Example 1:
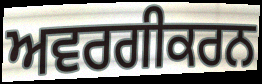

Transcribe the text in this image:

ਅਵਰਗੀਕਰਨ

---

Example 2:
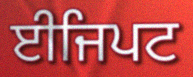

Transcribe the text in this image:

ਈਜਿਪਟ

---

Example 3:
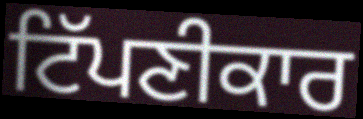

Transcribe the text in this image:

ਟਿੱਪਣੀਕਾਰ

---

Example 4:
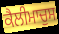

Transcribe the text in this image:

ਕੈਲੀਮਾਚੁਸ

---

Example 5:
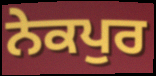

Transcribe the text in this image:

ਨੇਕਪੁਰ